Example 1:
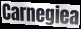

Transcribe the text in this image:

Carnegiea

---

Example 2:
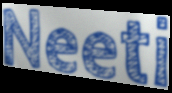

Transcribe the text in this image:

Neeti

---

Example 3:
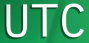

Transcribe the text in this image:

UTC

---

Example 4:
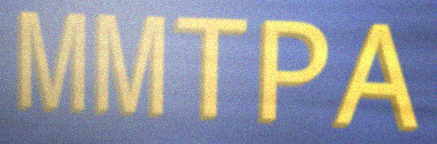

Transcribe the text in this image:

MMTPA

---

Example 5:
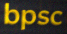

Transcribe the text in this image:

bpsc